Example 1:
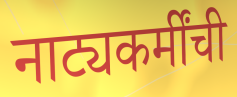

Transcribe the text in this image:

नाट्यकर्मींची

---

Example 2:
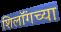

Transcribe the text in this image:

शिलॉंगच्या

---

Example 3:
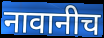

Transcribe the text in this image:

नावानीच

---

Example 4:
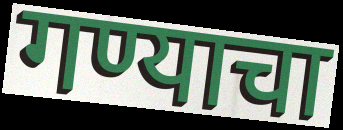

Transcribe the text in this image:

गण्याचा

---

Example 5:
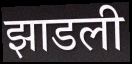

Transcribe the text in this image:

झाडली